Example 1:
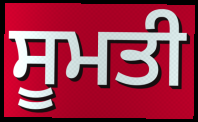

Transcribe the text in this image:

ਸੂਮਤੀ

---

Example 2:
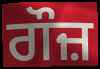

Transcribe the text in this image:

ਗੌਜ਼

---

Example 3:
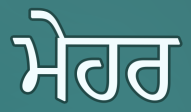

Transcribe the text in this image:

ਮੇਹਰ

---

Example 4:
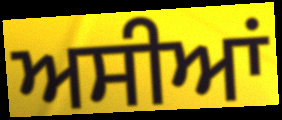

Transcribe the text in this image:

ਅਸੀਆਂ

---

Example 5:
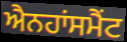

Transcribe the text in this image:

ਐਨਹਾਂਸਮੈਂਟ